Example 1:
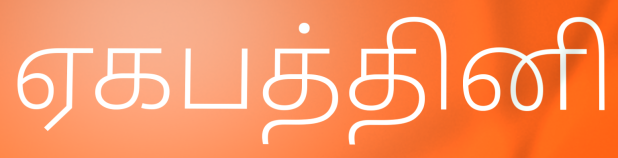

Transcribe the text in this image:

ஏகபத்தினி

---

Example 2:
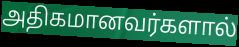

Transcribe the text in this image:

அதிகமானவர்களால்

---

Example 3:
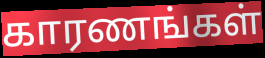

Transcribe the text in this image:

காரணங்கள்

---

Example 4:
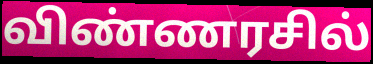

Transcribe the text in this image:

விண்ணரசில்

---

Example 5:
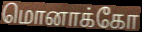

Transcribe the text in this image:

மொனாக்கோ